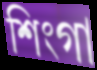
শিংগা